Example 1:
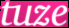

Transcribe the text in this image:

tuze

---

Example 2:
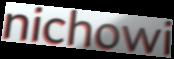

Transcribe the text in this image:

nichowi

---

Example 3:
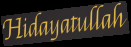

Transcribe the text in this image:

Hidayatullah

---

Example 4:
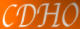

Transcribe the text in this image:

CDHO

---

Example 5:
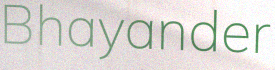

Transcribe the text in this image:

Bhayander